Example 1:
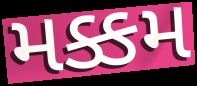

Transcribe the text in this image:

મક્કમ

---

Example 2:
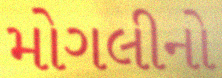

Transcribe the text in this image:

મોગલીનો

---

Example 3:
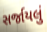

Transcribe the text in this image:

સર્જાયલું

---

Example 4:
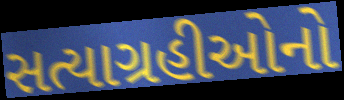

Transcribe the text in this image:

સત્યાગ્રહીઓનો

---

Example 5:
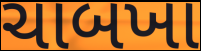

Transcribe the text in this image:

ચાબખા